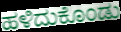
ಹಳಿದುಕೊಂಡು